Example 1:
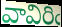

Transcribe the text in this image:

వావిరిఁ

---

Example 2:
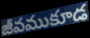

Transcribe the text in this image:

జీవముకూడ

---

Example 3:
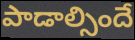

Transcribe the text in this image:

పాడాల్సిందే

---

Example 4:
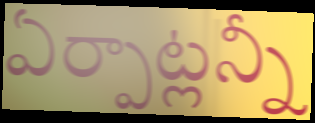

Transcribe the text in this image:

ఏర్పాట్లన్నీ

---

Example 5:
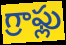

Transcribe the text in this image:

గ్రాఫ్లు